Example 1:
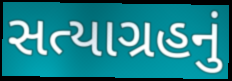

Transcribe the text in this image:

સત્યાગ્રહનું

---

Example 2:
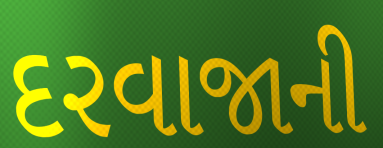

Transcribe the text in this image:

દરવાજાની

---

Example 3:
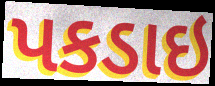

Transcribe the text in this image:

પકડાઇ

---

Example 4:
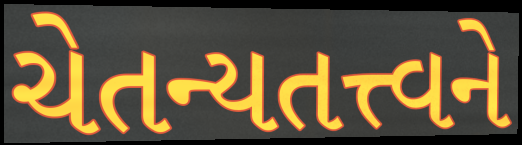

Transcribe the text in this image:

ચેતન્યતત્ત્વને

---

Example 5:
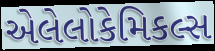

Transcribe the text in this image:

એલેલોકેમિકલ્સ